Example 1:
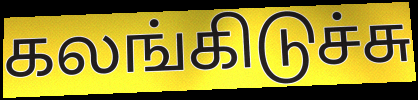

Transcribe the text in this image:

கலங்கிடுச்சு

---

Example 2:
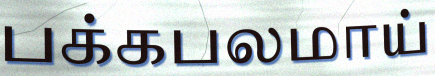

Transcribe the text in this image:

பக்கபலமாய்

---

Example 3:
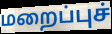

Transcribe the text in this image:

மறைப்புச்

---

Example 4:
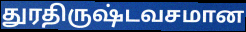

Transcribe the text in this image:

துரதிருஷ்டவசமான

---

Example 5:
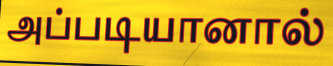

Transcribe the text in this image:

அப்படியானால்